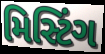
મિસ્ટિંગ